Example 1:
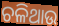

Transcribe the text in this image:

ଚଳିଥାଉ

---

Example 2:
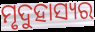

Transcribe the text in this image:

ମୃଦୁହାସ୍ୟର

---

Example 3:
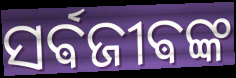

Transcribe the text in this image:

ସର୍ଵଜୀଵଙ୍କ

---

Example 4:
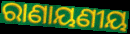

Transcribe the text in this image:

ରାଣାୟଣୀୟ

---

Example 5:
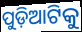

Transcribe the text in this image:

ପୁଡ଼ିଆଟିକୁ